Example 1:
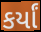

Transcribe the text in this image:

કર્યાં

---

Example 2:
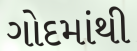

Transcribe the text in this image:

ગોદમાંથી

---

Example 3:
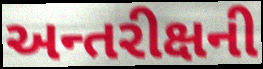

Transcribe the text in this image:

અન્તરીક્ષની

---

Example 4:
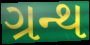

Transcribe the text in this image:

ગ્રન્થ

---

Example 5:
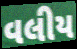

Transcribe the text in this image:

વલીય